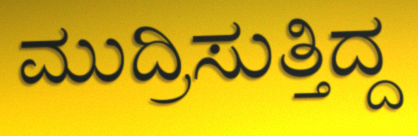
ಮುದ್ರಿಸುತ್ತಿದ್ದ